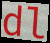
dl